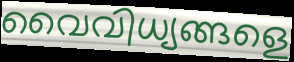
വൈവിധ്യങ്ങളെ